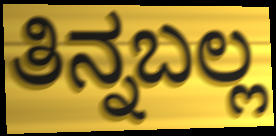
ತಿನ್ನಬಲ್ಲ